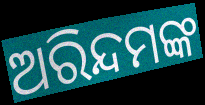
ଅରିନ୍ଦମଙ୍କ